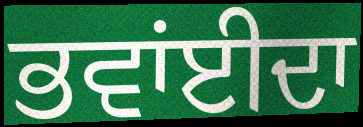
ਭਵਾਂਈਦਾ